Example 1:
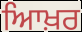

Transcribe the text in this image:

ਆਿਖ਼ਰ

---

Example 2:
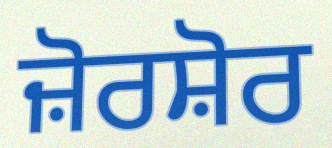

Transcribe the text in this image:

ਜ਼ੋਰਸ਼ੋਰ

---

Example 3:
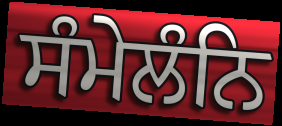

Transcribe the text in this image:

ਸੰਮੇਲੰਨਿ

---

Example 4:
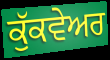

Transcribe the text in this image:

ਕੁੱਕਵੇਅਰ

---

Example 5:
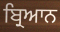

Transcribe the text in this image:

ਬ੍ਰਿਆਨ